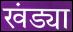
खंड्या